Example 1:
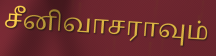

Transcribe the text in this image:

சீனிவாசராவும்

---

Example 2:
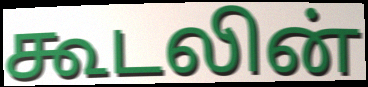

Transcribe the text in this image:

கூடலின்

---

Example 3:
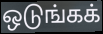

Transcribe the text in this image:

ஒடுங்கக்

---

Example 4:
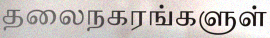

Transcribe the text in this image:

தலைநகரங்களுள்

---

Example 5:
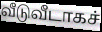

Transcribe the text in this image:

வீடுவீடாகச்